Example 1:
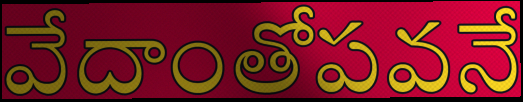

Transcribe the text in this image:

వేదాంతోపవనే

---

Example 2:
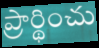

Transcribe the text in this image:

ప్రార్థించు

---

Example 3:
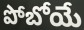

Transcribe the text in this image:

పోబోయే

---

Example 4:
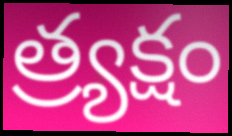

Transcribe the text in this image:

త్ర్యక్షం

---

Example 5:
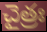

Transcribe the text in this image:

చైత్రః